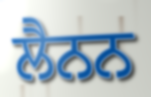
ਲੈਨਨ